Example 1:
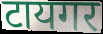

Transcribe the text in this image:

टायगर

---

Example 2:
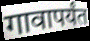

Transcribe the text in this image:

गावापर्यंत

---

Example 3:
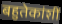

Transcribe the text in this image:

बहुतेकांशीं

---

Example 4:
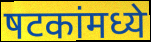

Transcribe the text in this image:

षटकांमध्ये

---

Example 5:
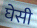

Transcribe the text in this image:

घेसी